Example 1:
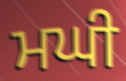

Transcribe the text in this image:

ਮਘੀ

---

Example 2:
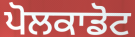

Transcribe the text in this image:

ਪੋਲਕਾਡੋਟ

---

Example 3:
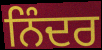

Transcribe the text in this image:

ਨਿੰਦਰ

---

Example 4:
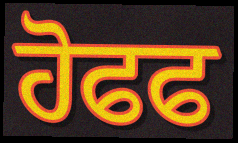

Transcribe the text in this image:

ਹੋਫਫ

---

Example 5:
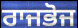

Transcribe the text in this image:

ਰਾਜਭੋਜ